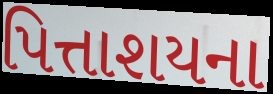
પિત્તાશયના